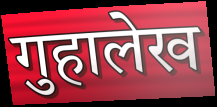
गुहालेख